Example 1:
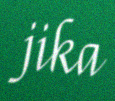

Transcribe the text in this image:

jika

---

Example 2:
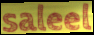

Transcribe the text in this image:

saleel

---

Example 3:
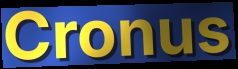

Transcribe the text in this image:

Cronus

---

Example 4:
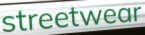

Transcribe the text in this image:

streetwear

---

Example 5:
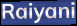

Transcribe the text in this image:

Raiyani